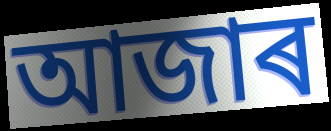
আজাৰ